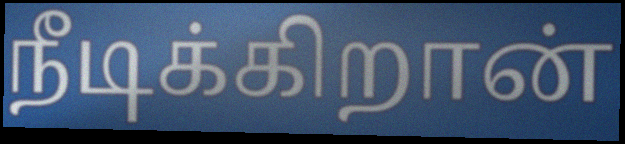
நீடிக்கிறான்